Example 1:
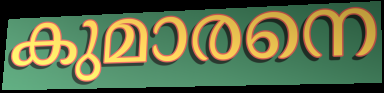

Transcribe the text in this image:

കുമാരനെ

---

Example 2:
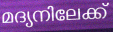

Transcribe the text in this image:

മദ്യനിലേക്ക്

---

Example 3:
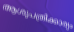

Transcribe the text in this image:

ആശുപത്രിക്കാര്യം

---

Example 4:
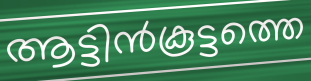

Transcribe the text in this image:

ആട്ടിൻകൂട്ടത്തെ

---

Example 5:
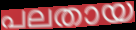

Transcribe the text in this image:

പലതായ